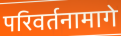
परिवर्तनामागे